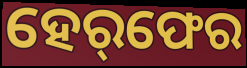
ହେର୍‌ଫେର